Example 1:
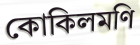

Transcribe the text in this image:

কোকিলমণি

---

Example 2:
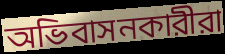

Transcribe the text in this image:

অভিবাসনকারীরা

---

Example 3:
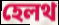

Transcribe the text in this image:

হেলথ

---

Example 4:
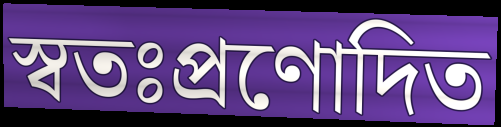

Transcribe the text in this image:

স্বতঃপ্রণোদিত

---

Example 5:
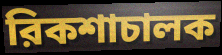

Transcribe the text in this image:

রিকশাচালক